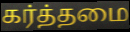
கர்த்தமை